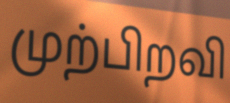
முற்பிறவி